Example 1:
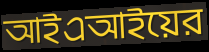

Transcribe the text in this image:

আইএআইয়ের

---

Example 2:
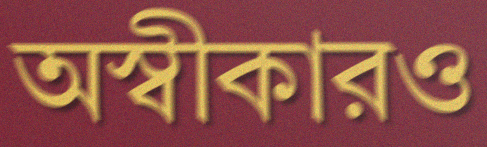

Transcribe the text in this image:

অস্বীকারও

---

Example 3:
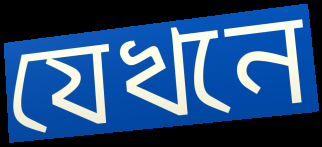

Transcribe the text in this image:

যেখনে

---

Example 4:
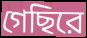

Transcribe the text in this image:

গেছিরে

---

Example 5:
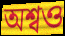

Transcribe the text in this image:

অশ্বও